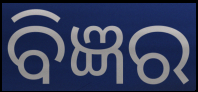
ବିଜ୍ଞର